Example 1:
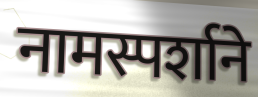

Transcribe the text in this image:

नामस्पर्शाने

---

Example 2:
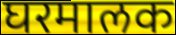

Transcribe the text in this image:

घरमालक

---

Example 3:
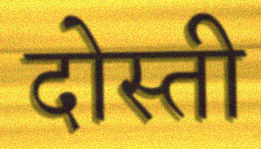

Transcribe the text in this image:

दोस्ती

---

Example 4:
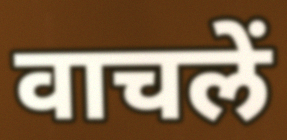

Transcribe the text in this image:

वाचलें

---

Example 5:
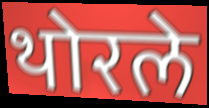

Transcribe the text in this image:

थोरले